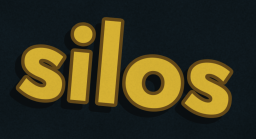
silos